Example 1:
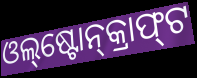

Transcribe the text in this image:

ଓଲ୍‌ଷ୍ଟୋନ୍‌କ୍ରାଫ୍‌ଟ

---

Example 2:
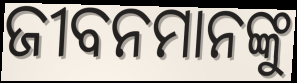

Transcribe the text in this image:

ଜୀବନମାନଙ୍କୁ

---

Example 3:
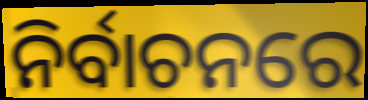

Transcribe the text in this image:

ନିର୍ବାଚନରେ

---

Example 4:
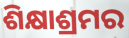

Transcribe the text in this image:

ଶିକ୍ଷାଶ୍ରମର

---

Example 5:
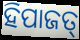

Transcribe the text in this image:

ହିପାଜତ୍